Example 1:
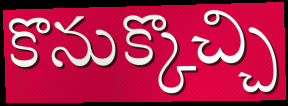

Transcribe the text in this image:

కొనుక్కొచ్చి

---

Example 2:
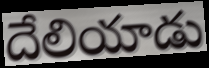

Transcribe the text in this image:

దేలియాడు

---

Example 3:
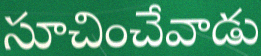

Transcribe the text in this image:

సూచించేవాడు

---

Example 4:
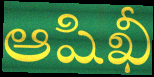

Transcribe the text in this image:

ఆషిఖీ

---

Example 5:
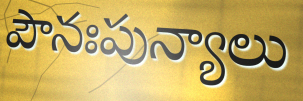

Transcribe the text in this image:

పౌనఃపున్యాలు